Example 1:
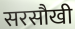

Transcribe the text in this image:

सरसौखी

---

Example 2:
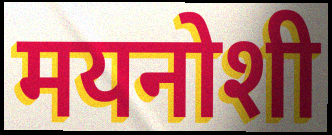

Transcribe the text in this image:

मयनोशी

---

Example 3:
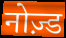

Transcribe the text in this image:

नोज़्ड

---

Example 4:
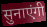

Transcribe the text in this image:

सुनाएंगी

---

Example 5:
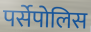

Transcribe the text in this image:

पर्सेपोलिस